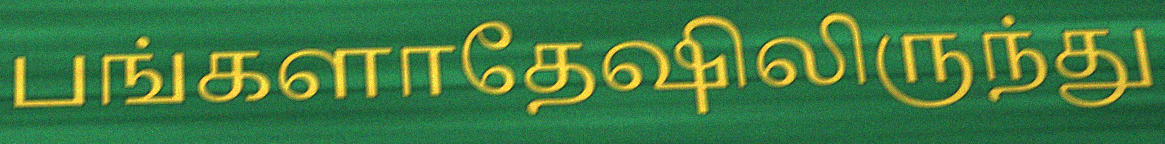
பங்களாதேஷிலிருந்து